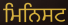
ਮਿਨਿਸਟ